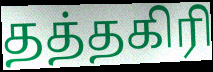
தத்தகிரி